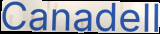
Canadell